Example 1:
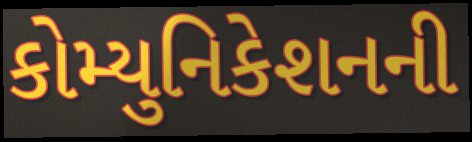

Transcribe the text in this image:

કોમ્યુનિકેશનની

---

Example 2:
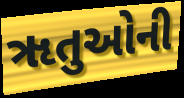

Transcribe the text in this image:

ૠતુઓની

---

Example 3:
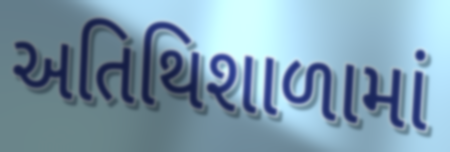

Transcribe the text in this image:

અતિથિશાળામાં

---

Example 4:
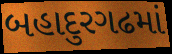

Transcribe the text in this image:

બહાદુરગઢમાં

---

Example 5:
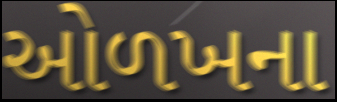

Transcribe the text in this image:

ઓળખના